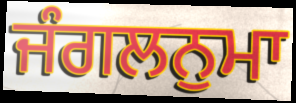
ਜੰਗਲਨੁਮਾ